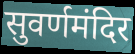
सुवर्णमंदिर